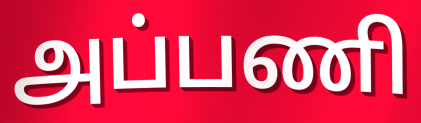
அப்பணி